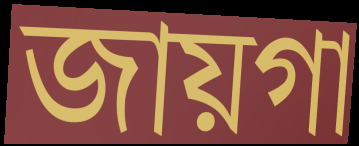
জায়গা